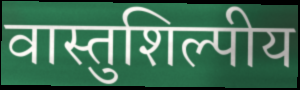
वास्तुशिल्पीय